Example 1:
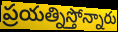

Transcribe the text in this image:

ప్రయత్నిస్తోన్నారు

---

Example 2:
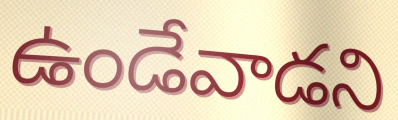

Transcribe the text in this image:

ఉండేవాడని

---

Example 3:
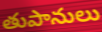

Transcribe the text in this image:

తుపానులు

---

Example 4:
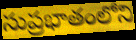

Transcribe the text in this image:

సుప్రభాతంలోని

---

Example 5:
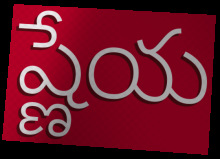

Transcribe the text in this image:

ష్ణేయ